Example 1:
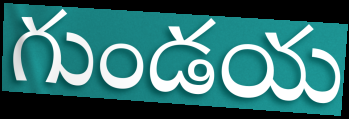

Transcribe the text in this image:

గుండయ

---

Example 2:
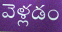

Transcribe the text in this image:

వెళ్లడం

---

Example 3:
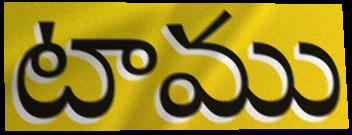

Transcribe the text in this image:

టాము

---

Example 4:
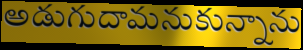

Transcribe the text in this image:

అడుగుదామనుకున్నాను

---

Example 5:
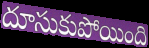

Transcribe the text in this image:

దూసుకుపోయింది